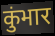
कुंभार